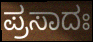
ಪ್ರಸಾದಃ